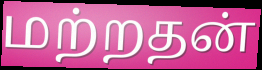
மற்றதன்